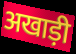
अखाड़ी